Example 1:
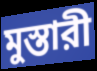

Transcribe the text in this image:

মুস্তারী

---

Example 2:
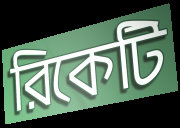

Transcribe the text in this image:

রিকেটি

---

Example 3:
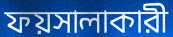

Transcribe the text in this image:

ফয়সালাকারী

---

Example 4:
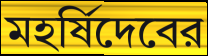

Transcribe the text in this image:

মহর্ষিদেবের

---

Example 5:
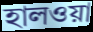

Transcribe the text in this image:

হালওয়া